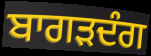
ਬਾਗੜਦੰਗ